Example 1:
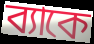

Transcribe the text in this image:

ব্যাকে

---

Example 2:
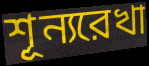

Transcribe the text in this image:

শূন্যরেখা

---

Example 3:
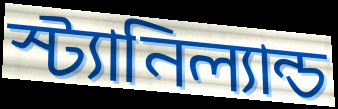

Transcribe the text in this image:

স্ট্যানিল্যান্ড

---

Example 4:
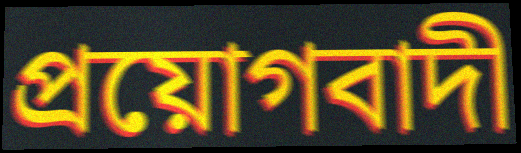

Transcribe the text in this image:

প্রয়োগবাদী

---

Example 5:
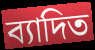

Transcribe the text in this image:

ব্যাদিত